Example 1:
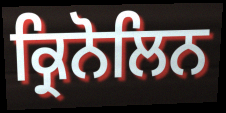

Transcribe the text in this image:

ਕ੍ਰਿਨੋਲਿਨ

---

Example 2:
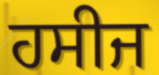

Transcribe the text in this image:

ਹਸੀਜ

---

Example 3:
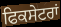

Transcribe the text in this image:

ਫਿਕਸੇਟਰਾਂ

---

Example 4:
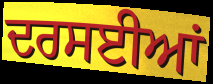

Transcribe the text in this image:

ਦਰਸਈਆਂ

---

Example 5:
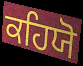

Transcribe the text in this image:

ਕਹਿਯੋ